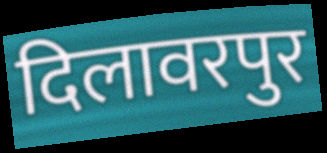
दिलावरपुर